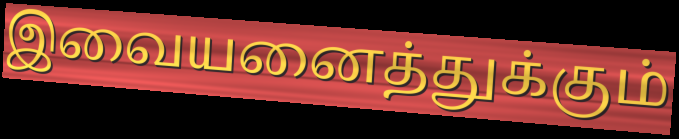
இவையனைத்துக்கும்